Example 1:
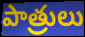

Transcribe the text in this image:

పాత్రులు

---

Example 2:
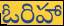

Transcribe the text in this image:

ఓరిహా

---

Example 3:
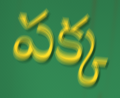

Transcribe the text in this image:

పక్క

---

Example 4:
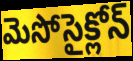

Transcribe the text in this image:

మెసోసైక్లోన్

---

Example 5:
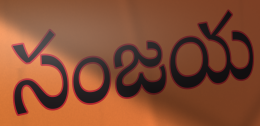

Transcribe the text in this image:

సంజయ